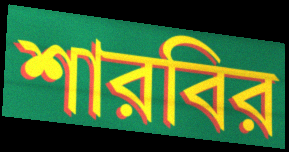
শারবির